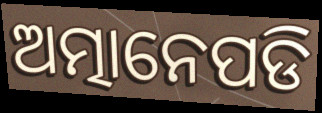
ଅତ୍ମାନେପଡି